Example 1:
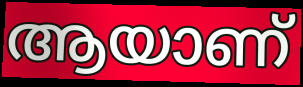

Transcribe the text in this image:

ആയാണ്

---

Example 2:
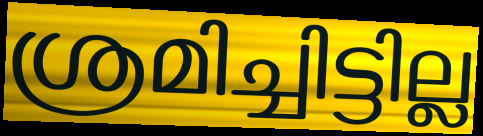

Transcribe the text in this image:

ശ്രമിച്ചിട്ടില്ല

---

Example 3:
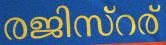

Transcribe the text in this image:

രജിസ്റര്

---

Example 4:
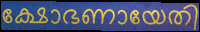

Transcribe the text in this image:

ക്ഷോഭണായേതി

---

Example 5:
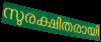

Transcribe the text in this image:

സുരക്ഷിതരായി